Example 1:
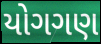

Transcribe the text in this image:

યોગગણ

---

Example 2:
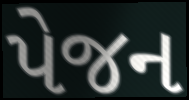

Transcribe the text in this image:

પેજન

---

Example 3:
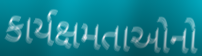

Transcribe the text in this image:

કાર્યક્ષમતાઓનો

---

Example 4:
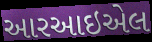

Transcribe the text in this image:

આરઆઇએલ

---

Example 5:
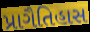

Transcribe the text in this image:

પ્રાગૈતિહાસ